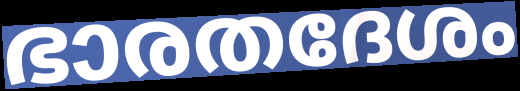
ഭാരതദേശം